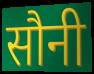
सौनी